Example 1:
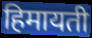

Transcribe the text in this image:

हिमायती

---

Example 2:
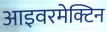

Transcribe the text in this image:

आइवरमेक्टिन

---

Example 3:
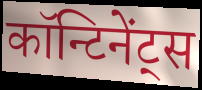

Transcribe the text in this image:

कॉन्टिनेंट्स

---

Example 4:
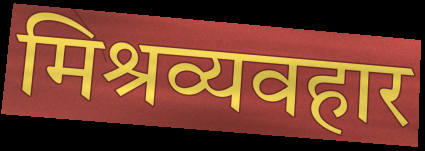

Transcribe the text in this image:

मिश्रव्यवहार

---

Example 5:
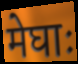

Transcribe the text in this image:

मेघाः